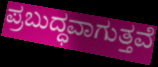
ಪ್ರಬುದ್ಧವಾಗುತ್ತವೆ